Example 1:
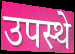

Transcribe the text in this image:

उपस्थे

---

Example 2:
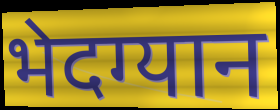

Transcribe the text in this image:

भेदग्यान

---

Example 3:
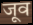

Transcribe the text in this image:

जूव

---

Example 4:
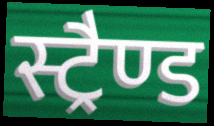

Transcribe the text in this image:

स्ट्रैण्ड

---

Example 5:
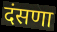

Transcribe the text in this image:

दंसणा